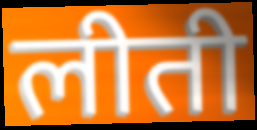
लीती